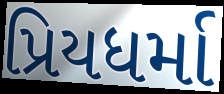
પ્રિયધર્મા